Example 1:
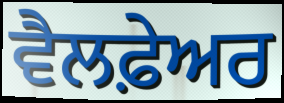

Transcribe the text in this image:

ਵੈਲਫ਼ੇਅਰ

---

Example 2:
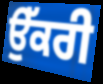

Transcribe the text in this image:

ਉੱਕਰੀ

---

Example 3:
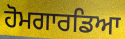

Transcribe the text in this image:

ਹੋਮਗਾਰਡਿਆ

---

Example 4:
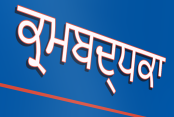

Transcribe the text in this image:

ਕ੍ਰਮਬਦ੍ਧਕਾ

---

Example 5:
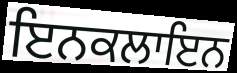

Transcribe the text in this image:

ਇਨਕਲਾਇਨ